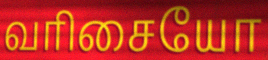
வரிசையோ